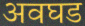
अवघड